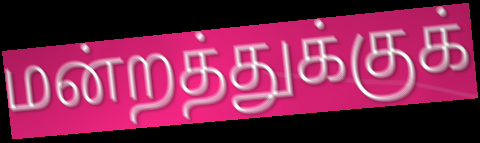
மன்றத்துக்குக்